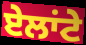
ਏਲਾਂਟੇ